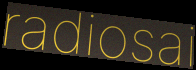
radiosai